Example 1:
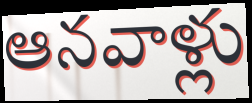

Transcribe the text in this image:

ఆనవాళ్లు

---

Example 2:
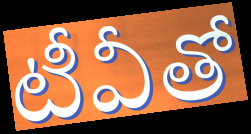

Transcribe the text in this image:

టీవీతో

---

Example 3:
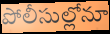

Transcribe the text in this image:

పోలీసుల్లోనూ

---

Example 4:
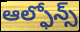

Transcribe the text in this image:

ఆల్ఫోన్స్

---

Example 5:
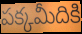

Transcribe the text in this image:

పక్కమీదికి